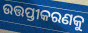
ଉତ୍ତପ୍ତୀକରଣକୁ